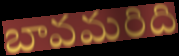
బావమరిది